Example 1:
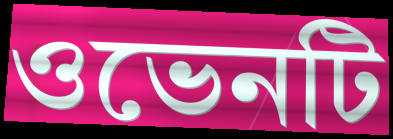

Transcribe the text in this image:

ওভেনটি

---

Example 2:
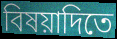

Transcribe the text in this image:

বিষয়াদিতে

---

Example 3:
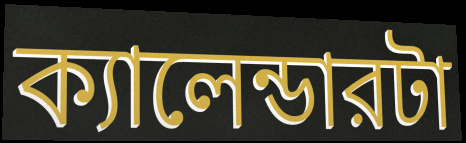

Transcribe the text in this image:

ক্যালেন্ডারটা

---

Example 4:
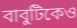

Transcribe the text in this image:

বাবুটিকেও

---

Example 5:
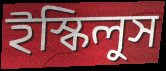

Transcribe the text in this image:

ইস্কিলুস